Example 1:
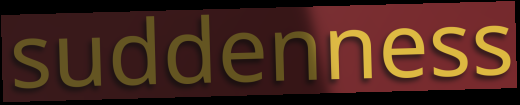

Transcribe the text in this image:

suddenness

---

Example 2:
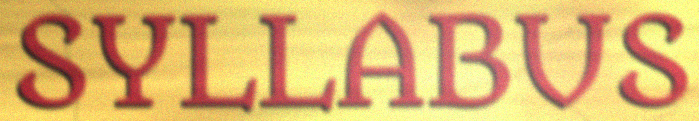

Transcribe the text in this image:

SYLLABUS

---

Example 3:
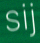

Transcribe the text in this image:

sij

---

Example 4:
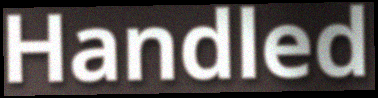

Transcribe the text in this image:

Handled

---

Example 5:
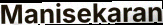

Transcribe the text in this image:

Manisekaran